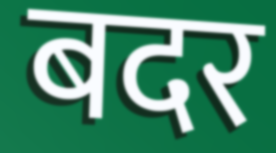
बदर